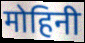
मोहिनी